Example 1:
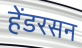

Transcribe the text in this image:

हेंडरसन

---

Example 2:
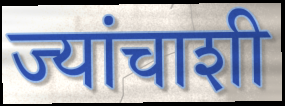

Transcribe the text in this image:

ज्यांचाशी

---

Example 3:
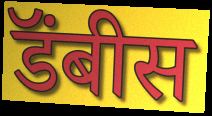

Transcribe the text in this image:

डॅंबीस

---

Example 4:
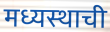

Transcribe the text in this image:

मध्यस्थाची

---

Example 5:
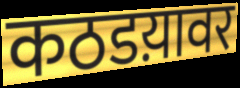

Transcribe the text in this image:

कठडय़ावर